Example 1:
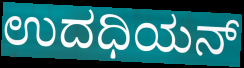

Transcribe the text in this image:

ಉದಧಿಯನ್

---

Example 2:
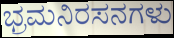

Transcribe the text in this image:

ಭ್ರಮನಿರಸನಗಳು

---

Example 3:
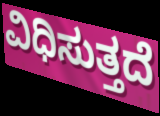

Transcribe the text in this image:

ವಿಧಿಸುತ್ತದೆ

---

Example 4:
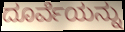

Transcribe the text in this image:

ದೂರ್ವೆಯನ್ನು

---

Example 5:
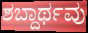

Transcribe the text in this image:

ಶಬ್ದಾರ್ಥವು